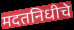
मदतनिधीचे